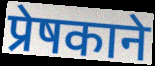
प्रेषकाने